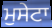
ਮੁਸੇਟਾ